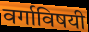
वर्गाविषयी